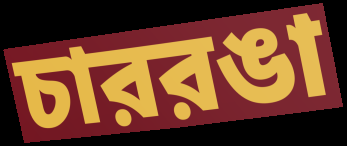
চাররঙা